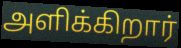
அளிக்கிறார்